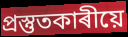
প্ৰস্তুতকাৰীয়ে